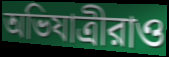
অভিযাত্রীরাও